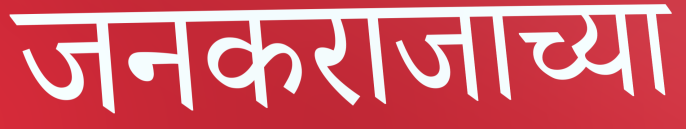
जनकराजाच्या